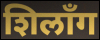
शिलाँग